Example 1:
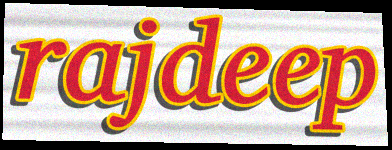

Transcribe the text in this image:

rajdeep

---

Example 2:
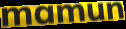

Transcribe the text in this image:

mamun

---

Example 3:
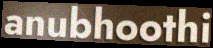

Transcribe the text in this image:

anubhoothi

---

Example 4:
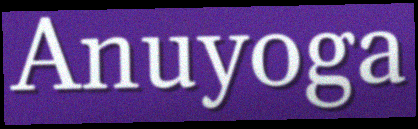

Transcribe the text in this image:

Anuyoga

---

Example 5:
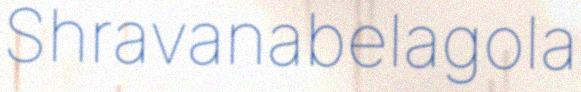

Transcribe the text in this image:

Shravanabelagola